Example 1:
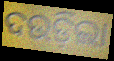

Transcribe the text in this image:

ଦଉଡ଼ିଲା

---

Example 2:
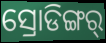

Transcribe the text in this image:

ସ୍ରୋଡିଙ୍ଗର୍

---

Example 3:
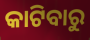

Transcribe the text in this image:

କାଟିବାରୁ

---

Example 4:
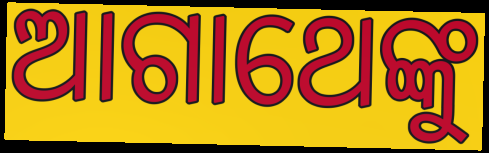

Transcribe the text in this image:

ଆଗାଥେଙ୍କୁ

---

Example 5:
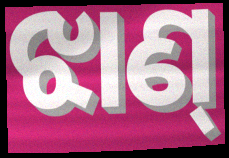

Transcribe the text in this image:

ଝାଣ୍